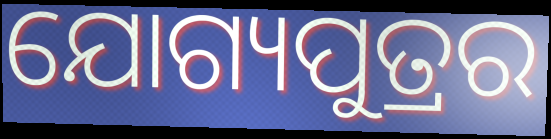
ଯୋଗ୍ୟପୁତ୍ରର